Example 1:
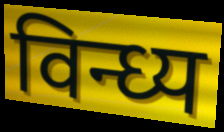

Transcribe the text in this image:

विन्ध्य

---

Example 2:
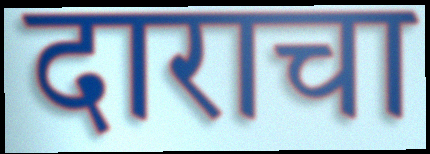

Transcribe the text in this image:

दाराचा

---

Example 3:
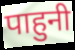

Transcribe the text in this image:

पाहुनी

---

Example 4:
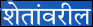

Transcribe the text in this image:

शेतांवरील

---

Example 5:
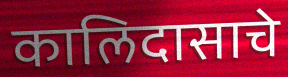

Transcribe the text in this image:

कालिदासाचे